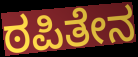
ಠಪಿತೇನ